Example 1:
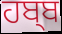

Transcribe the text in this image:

ਹਬ੍ਬ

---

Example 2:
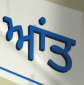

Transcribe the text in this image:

ਆਂਤ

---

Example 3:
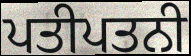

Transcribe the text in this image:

ਪਤੀਪਤਨੀ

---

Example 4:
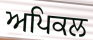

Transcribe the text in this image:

ਅਪਿਕਲ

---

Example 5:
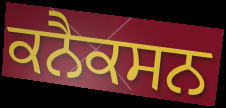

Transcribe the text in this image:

ਕਨੈਕਸਨ